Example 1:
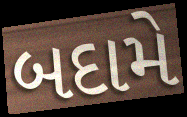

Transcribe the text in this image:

બદામે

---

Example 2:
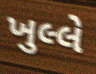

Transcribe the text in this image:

ખુલ્લે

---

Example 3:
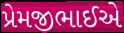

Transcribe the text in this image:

પ્રેમજીભાઈએ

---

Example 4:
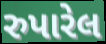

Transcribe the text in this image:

રુપારેલ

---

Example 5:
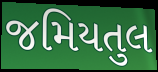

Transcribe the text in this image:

જમિયતુલ